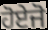
ਹੋਏਜੋ